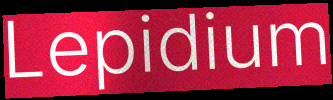
Lepidium